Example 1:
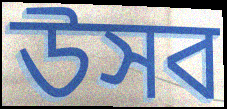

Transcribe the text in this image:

উসব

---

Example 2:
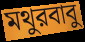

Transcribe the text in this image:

মথুরবাবু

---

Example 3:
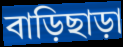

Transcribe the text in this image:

বাড়িছাড়া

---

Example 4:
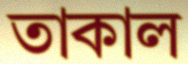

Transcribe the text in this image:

তাকাল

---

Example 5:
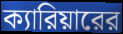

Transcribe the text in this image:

ক্যারিয়ারের